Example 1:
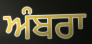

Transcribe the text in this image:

ਅੰਬਰਾ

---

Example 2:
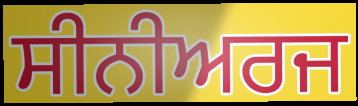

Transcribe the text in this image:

ਸੀਨੀਅਰਜ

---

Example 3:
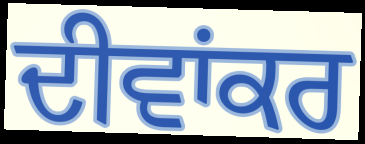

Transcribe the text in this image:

ਦੀਵਾਂਕਰ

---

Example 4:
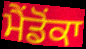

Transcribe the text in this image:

ਮੈਂਡੋਂਕਾ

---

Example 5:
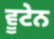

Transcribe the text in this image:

ਵੂਟੇਨ